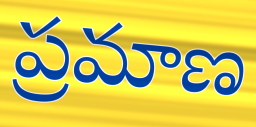
ప్రమాణ